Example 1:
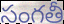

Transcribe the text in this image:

సంగతీ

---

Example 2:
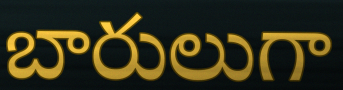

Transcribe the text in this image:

బారులుగా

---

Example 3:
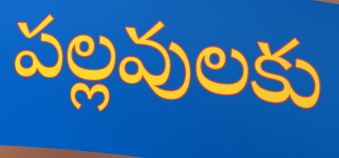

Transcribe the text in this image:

పల్లవులకు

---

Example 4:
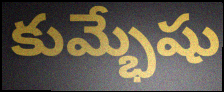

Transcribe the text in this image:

కుమ్భేషు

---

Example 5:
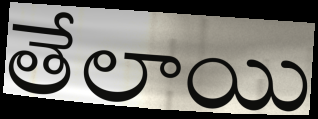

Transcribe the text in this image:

తేలాయి